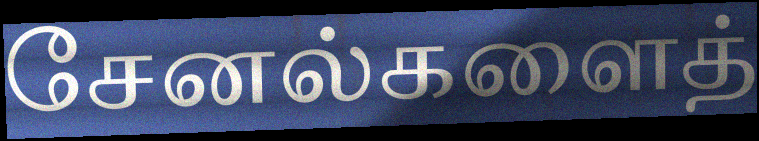
சேனல்களைத்